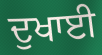
ਦੁਖਾਈ